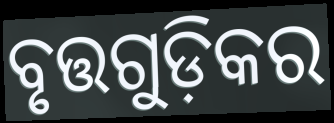
ବୃତ୍ତଗୁଡ଼ିକର